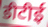
डीटीई